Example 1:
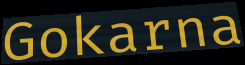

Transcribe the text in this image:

Gokarna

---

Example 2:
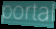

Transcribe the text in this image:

portal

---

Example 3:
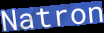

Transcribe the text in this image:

Natron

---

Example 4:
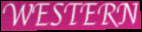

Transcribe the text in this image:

WESTERN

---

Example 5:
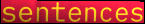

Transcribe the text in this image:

sentences